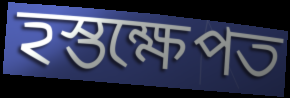
হস্তক্ষেপত